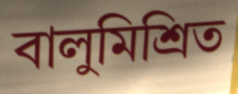
বালুমিশ্রিত